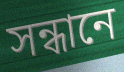
সন্ধানে